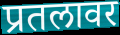
प्रतलावर